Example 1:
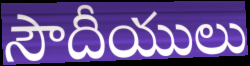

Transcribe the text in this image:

సౌదీయులు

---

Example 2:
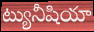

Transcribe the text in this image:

ట్యునీషియా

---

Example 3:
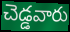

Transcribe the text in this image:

చెడ్డవారు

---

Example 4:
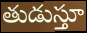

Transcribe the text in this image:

తుడుస్తూ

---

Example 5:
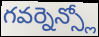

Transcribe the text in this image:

గవర్నెన్స్లో